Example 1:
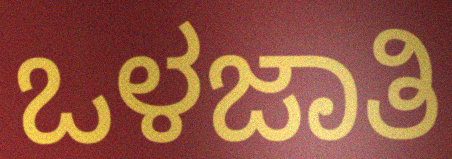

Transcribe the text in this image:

ಒಳಜಾತಿ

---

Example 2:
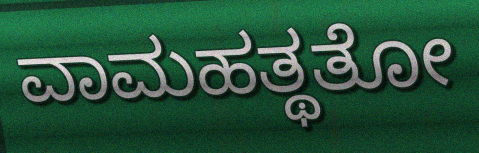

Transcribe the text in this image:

ವಾಮಹತ್ಥತೋ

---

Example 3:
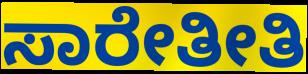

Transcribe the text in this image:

ಸಾರೇತೀತಿ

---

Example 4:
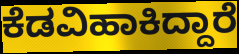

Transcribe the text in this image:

ಕೆಡವಿಹಾಕಿದ್ದಾರೆ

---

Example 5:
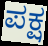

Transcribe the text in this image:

ಪಕ್ಷ